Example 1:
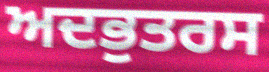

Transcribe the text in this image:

ਅਦਭੁਤਰਸ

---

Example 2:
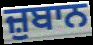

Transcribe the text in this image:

ਜ਼ੁਬਾਨ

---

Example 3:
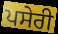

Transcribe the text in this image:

ਪਸੇਰੀ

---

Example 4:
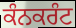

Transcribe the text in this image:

ਕੰਨਕਰੰਟ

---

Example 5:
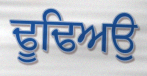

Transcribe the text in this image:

ਢੂਢਿਅਉ